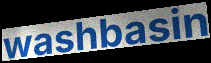
washbasin